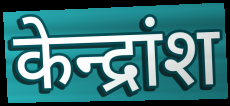
केन्द्रांश